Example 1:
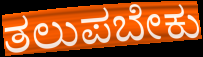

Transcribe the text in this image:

ತಲುಪಬೇಕು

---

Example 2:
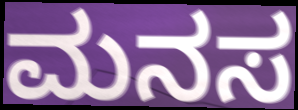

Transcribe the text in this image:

ಮನಸ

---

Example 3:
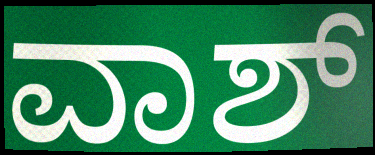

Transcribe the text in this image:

ವಾಶ್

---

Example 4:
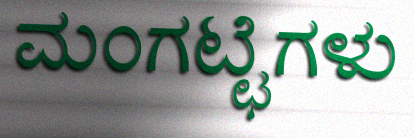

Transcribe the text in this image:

ಮಂಗಟ್ಟೆಗಳು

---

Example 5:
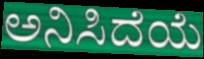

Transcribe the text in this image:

ಅನಿಸಿದೆಯೆ